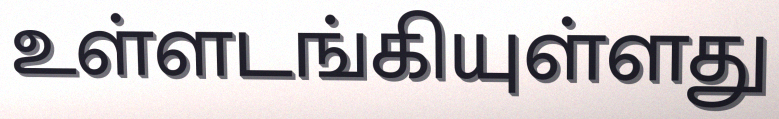
உள்ளடங்கியுள்ளது